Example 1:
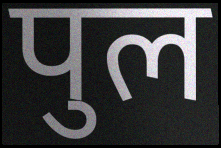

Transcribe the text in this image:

पुल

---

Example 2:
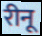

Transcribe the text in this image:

रीनू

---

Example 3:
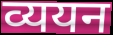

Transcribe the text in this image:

व्ययन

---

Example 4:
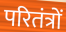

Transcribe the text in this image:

परितंत्रों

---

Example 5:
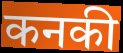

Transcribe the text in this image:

कनकी